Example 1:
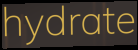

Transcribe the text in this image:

hydrate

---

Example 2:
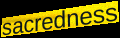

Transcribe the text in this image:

sacredness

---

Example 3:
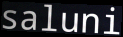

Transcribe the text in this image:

saluni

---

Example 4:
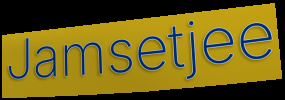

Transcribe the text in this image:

Jamsetjee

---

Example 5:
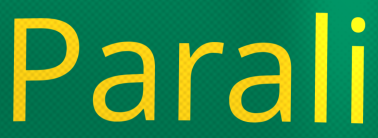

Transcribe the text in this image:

Parali